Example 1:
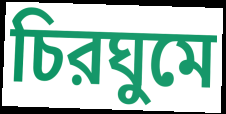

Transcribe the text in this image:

চিরঘুমে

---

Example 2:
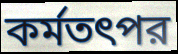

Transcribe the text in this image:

কর্মতৎপর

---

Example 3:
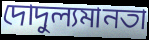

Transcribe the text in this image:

দোদুল্যমানতা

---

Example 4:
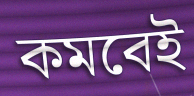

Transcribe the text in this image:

কমবেই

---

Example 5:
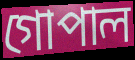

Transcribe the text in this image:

গোপাল